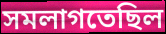
সমলাগতেছিল